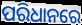
ପରିଧାନରେ